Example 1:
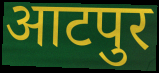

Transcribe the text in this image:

आटपुर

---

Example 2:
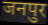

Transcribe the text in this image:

जनपुर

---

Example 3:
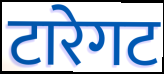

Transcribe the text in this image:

टारेगट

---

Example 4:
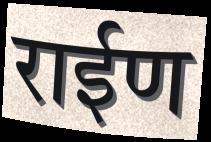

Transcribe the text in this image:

राईण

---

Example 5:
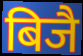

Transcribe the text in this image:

बिजै